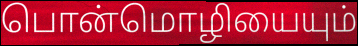
பொன்மொழியையும்